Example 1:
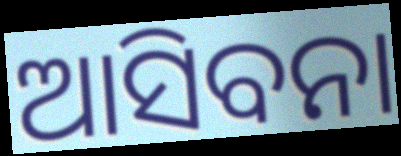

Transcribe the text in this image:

ଆସିବନା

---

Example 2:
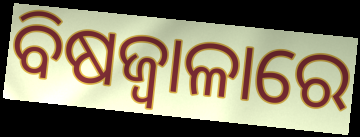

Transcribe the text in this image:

ବିଷଜ୍ୱାଳାରେ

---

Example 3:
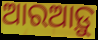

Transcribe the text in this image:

ଆରଆଡ଼ୁ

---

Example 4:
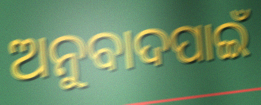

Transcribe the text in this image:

ଅନୁବାଦପାଇଁ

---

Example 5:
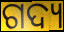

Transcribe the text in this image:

ଗଦ୍ୟ